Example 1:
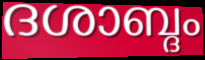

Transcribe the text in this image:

ദശാബ്ദം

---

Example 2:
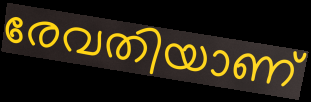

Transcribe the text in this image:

രേവതിയാണ്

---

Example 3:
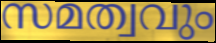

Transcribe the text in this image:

സമത്വവും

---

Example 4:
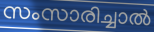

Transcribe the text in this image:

സംസാരിച്ചാൽ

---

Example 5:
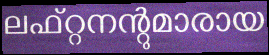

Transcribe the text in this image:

ലഫ്റ്റനന്റുമാരായ